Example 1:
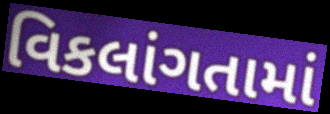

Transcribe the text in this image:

વિકલાંગતામાં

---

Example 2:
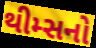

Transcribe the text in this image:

થીમ્સનો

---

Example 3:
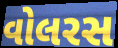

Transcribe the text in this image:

વોલરસ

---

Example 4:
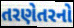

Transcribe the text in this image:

તરણેતરનો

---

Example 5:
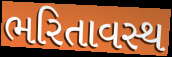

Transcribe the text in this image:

ભરિતાવસ્થ